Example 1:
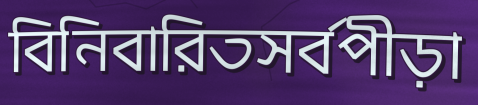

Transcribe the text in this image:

বিনিবারিতসর্বপীড়া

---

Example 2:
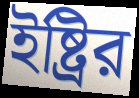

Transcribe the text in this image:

ইষ্ট্রির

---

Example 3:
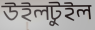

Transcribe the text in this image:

উইলটুইল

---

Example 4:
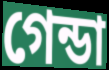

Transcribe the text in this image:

গেন্ডা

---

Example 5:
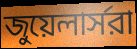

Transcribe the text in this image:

জুয়েলার্সরা